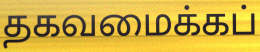
தகவமைக்கப்